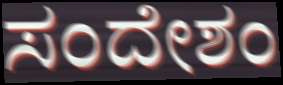
ಸಂದೇಶಂ